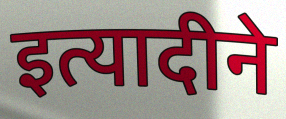
इत्यादीने